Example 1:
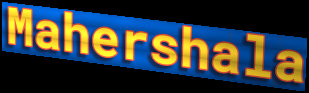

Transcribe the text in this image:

Mahershala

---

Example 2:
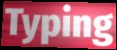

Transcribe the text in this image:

Typing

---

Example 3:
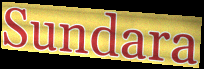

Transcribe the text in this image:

Sundara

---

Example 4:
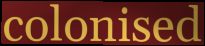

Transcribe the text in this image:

colonised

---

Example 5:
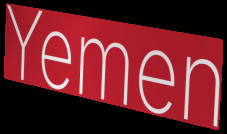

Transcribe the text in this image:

Yemen